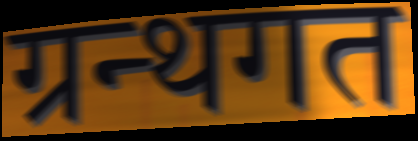
ग्रन्थगत